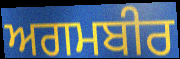
ਅਗਮਬੀਰ